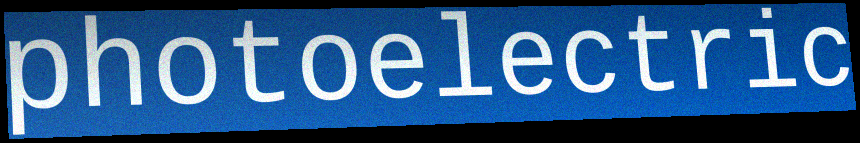
photoelectric